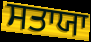
ਸਤਾਯਾ